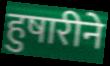
हुषारीने